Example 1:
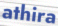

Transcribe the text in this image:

athira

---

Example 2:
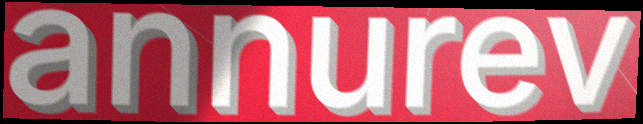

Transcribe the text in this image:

annurev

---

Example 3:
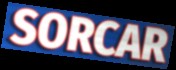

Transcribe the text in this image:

SORCAR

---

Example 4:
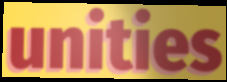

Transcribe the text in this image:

unities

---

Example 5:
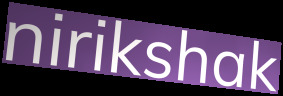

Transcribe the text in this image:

nirikshak